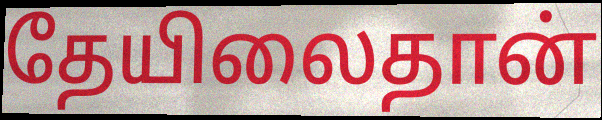
தேயிலைதான்